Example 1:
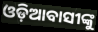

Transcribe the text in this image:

ଓଡ଼ିଆବାସୀଙ୍କୁ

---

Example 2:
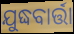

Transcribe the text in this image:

ଯୁଦ୍ଧବାର୍ତ୍ତା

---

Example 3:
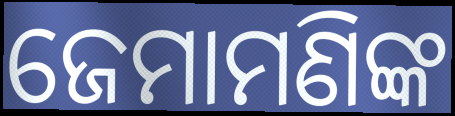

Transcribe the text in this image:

ଜେମାମଣିଙ୍କ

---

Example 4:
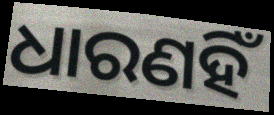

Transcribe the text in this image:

ଧାରଣହିଁ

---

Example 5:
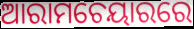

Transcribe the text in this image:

ଆରାମଚେୟାରରେ